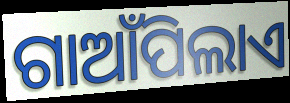
ଗାଆଁପିଲାଏ